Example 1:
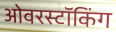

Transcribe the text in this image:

ओवरस्टॉकिंग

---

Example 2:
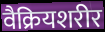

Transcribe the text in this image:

वैक्रियशरीर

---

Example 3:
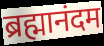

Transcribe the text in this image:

ब्रह्मानंदम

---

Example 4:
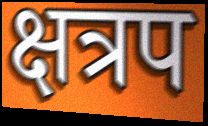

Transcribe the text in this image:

क्षत्रप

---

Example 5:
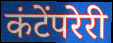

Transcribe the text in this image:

कंटेंपरेरी